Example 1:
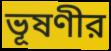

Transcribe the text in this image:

ভূষণীর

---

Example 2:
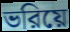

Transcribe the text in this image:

ভরিয়ে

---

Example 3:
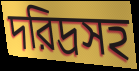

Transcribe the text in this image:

দরিদ্রসহ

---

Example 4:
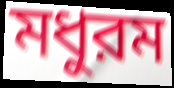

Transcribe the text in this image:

মধুরম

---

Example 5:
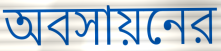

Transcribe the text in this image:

অবসায়নের